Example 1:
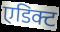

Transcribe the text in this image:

एडिक्ट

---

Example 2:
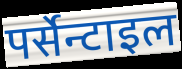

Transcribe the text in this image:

पर्सेन्टाइल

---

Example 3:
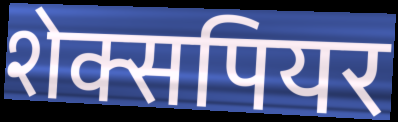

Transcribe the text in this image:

शेक्सपियर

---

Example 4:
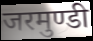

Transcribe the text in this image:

जरमुण्डी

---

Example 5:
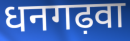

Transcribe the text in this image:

धनगढ़वा